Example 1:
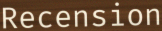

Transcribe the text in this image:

Recension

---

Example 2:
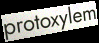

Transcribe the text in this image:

protoxylem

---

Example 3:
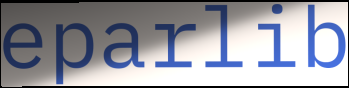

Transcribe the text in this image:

eparlib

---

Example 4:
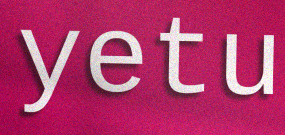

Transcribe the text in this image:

yetu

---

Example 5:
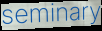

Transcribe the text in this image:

seminary